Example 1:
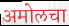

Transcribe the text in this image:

अमोलचा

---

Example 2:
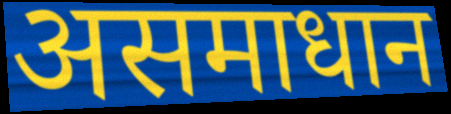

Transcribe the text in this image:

असमाधान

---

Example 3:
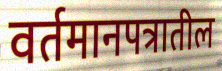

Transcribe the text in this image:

वर्तमानपत्रातील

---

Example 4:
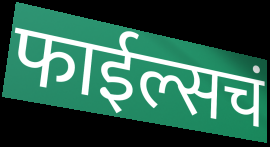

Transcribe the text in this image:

फाईल्सचं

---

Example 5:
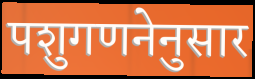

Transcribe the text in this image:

पशुगणनेनुसार